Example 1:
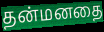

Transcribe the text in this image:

தன்மனதை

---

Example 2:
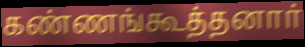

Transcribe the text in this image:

கண்ணங்கூத்தனார்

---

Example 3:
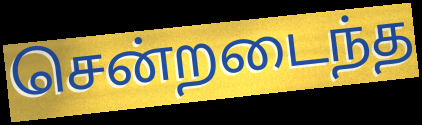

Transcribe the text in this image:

சென்றடைந்த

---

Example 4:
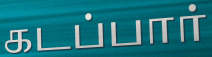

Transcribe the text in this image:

கடப்பார்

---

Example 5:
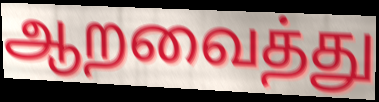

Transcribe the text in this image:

ஆறவைத்து